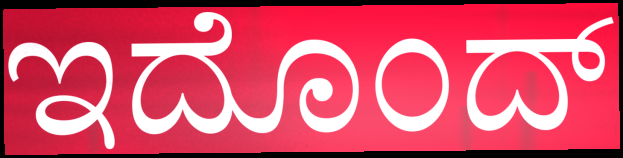
ಇದೊಂದ್